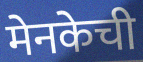
मेनकेची